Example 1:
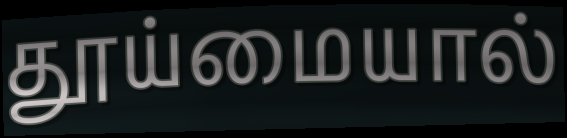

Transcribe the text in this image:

தூய்மையால்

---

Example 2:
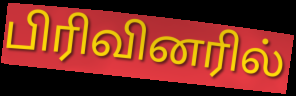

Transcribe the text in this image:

பிரிவினரில்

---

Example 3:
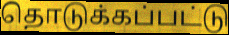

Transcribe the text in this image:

தொடுக்கப்பட்டு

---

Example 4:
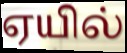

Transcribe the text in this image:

ஏயில்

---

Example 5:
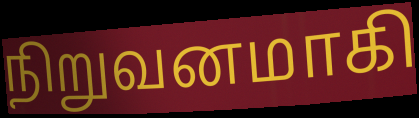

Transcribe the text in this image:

நிறுவனமாகி